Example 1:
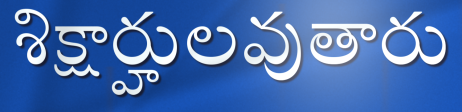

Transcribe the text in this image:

శిక్షార్హులవుతారు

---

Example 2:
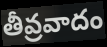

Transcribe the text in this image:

తీవ్రవాదం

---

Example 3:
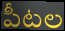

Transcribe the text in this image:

పీటల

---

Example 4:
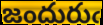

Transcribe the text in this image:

జందురుఁ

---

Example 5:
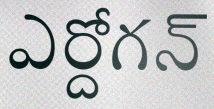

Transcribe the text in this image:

ఎర్దోగన్